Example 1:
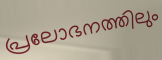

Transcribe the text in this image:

പ്രലോഭനത്തിലും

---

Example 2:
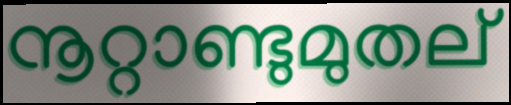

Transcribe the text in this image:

നൂറ്റാണ്ടുമുതല്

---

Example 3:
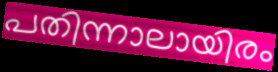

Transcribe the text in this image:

പതിന്നാലായിരം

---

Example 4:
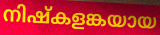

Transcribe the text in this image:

നിഷ്കളങ്കയായ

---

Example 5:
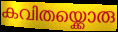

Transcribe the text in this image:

കവിതയ്ക്കൊരു